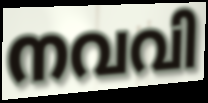
നവവി